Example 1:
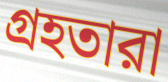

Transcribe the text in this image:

গ্রহতারা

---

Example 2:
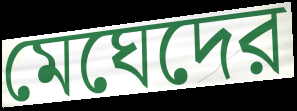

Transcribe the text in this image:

মেঘেদের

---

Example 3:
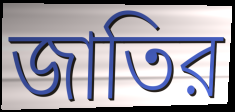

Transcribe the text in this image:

জাতির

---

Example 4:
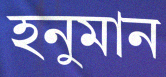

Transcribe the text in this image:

হনুমান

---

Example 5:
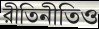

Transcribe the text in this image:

রীতিনীতিও